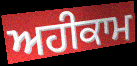
ਅਹੀਕਾਮ